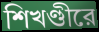
শিখণ্ডীরে